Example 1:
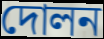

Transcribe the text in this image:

দোলন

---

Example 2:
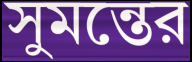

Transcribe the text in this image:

সুমন্তের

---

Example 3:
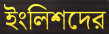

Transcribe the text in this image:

ইংলিশদের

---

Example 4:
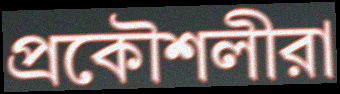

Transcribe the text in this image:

প্রকৌশলীরা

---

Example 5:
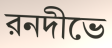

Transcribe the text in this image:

রনদীভে